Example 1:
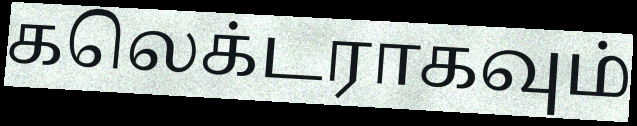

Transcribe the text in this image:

கலெக்டராகவும்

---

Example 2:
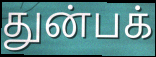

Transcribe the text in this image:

துன்பக்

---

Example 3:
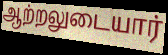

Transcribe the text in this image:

ஆற்றலுடையார்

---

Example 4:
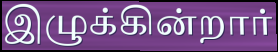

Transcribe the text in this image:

இழுக்கின்றார்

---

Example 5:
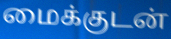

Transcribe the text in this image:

மைக்குடன்